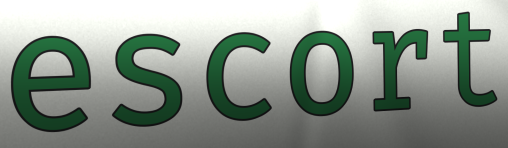
escort